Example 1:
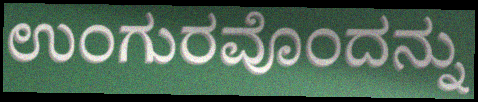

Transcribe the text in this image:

ಉಂಗುರವೊಂದನ್ನು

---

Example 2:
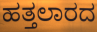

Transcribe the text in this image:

ಹತ್ತಲಾರದ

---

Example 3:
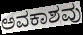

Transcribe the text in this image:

ಅವಕಾಶವು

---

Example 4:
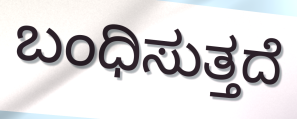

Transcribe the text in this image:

ಬಂಧಿಸುತ್ತದೆ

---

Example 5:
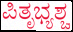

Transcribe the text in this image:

ಪಿತೃಭ್ಯಶ್ಚ